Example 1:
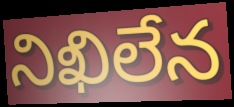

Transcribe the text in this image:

నిఖిలేన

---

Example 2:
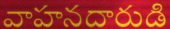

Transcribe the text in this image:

వాహనదారుడి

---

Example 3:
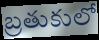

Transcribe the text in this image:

బ్రతుకులో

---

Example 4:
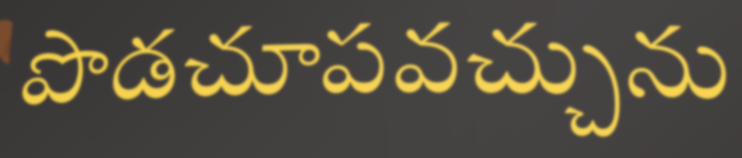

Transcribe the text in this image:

పొడచూపవచ్చును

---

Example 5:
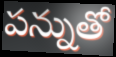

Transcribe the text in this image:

పన్నుతో